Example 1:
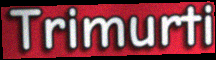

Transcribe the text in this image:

Trimurti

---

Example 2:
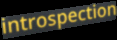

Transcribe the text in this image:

introspection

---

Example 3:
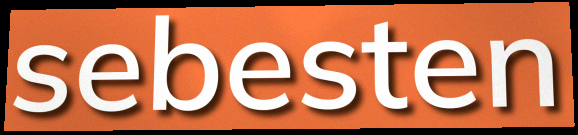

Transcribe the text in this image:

sebesten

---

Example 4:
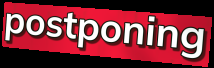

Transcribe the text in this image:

postponing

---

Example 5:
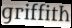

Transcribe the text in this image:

griffith